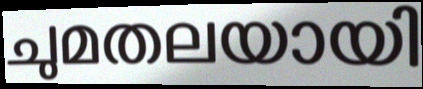
ചുമതലയായി